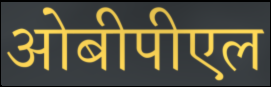
ओबीपीएल